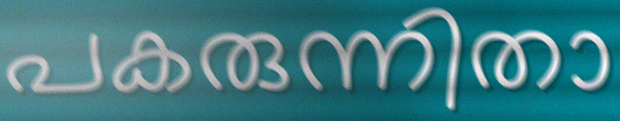
പകരുന്നിതാ